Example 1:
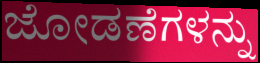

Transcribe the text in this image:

ಜೋಡಣೆಗಳನ್ನು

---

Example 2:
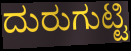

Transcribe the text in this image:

ದುರುಗುಟ್ಟಿ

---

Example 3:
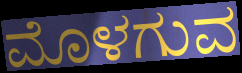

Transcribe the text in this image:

ಮೊಳಗುವ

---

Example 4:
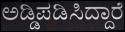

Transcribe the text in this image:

ಅಡ್ಡಿಪಡಿಸಿದ್ದಾರೆ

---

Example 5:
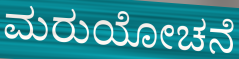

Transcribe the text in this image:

ಮರುಯೋಚನೆ